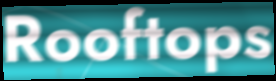
Rooftops